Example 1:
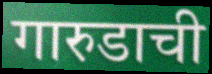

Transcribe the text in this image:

गारुडाची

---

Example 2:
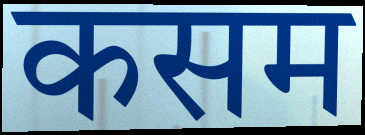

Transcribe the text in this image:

कसम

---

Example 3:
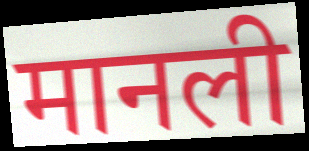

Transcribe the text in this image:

मानली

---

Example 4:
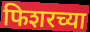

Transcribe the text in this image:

फिशरच्या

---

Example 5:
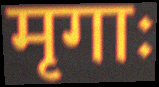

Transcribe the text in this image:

मृगाः